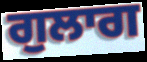
ਗੁਲਾਗ